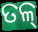
ତଳ୍